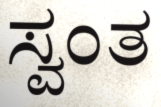
ಸ್ವಂತ